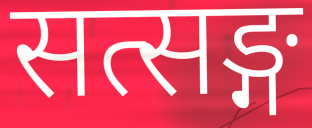
सत्सङ्ग